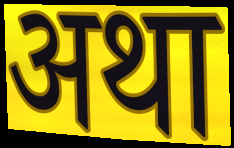
अथा